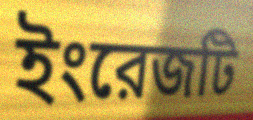
ইংরেজটি